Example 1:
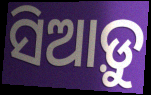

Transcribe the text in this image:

ସିଆଡ଼ୁ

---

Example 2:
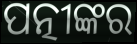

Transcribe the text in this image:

ପତ୍ନୀଙ୍କର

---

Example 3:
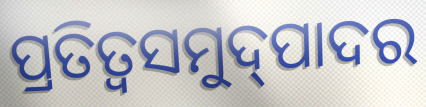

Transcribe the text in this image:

ପ୍ରତିତ୍ଵସମୁଦ୍‌ପାଦର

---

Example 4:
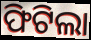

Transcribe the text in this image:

ଫିଟିଲା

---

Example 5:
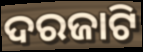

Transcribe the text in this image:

ଦରଜାଟି